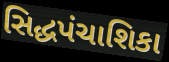
સિદ્ધપંચાશિકા